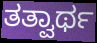
ತತ್ವಾರ್ಥ